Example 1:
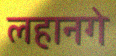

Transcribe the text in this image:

लहानगे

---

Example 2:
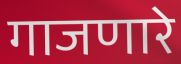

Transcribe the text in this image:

गाजणारे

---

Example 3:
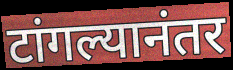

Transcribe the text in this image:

टांगल्यानंतर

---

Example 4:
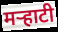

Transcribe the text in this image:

मर्‍हाटी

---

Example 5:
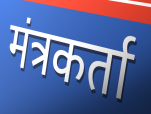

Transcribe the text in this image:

मंत्रकर्ता